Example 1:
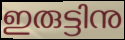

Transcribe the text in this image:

ഇരുട്ടിനു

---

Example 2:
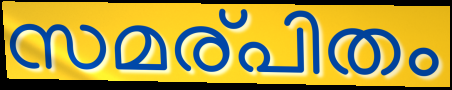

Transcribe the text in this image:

സമര്പിതം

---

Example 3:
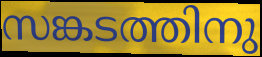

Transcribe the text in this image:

സങ്കടത്തിനു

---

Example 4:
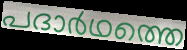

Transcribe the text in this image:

പദാർഥത്തെ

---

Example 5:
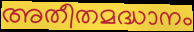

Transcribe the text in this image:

അതീതമദ്ധാനം